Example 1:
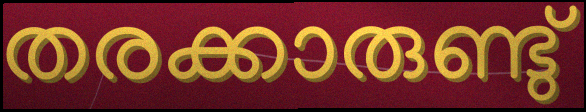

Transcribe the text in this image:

തരക്കാരുണ്ടു്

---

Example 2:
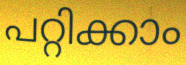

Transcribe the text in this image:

പറ്റിക്കാം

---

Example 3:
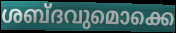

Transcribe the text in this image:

ശബ്ദവുമൊക്കെ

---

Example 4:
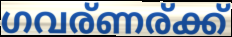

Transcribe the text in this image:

ഗവര്ണര്ക്ക്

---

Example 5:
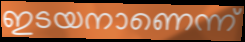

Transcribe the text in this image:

ഇടയനാണെന്ന്